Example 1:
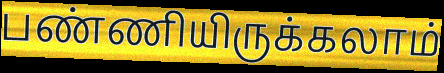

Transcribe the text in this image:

பண்ணியிருக்கலாம்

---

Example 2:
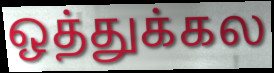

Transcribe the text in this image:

ஒத்துக்கல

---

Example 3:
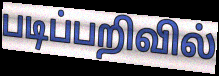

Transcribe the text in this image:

படிப்பறிவில்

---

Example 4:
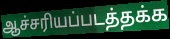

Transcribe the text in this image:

ஆச்சரியப்படத்தக்க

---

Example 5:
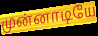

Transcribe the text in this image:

முன்னாடியே